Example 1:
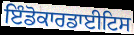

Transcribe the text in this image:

ਇੰਡੋਕਾਰਡਾਈਟਿਸ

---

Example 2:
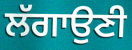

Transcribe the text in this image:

ਲੱਗਾਉਣੀ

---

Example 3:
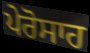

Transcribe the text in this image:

ਪੇਰੋਸਾਹ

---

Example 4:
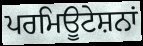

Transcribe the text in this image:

ਪਰਮਿਊਟੇਸ਼ਨਾਂ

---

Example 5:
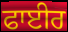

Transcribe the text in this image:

ਫਾਈਰ